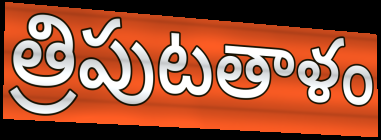
త్రిపుటతాళం